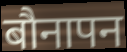
बौनापन